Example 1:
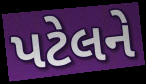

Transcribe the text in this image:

પટેલને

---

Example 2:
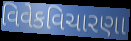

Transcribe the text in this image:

વિવેકવિચારણા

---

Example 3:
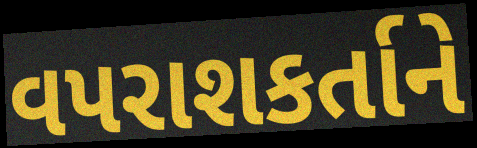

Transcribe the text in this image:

વપરાશકર્તાને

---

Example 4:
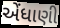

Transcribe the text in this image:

એંધાણી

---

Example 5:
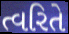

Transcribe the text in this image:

ત્વરિતે